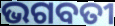
ଭଗବତୀ